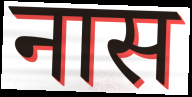
नास